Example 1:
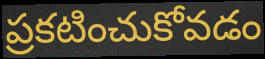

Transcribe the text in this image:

ప్రకటించుకోవడం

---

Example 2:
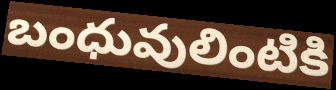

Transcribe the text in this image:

బంధువులింటికి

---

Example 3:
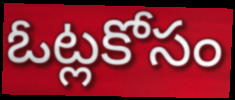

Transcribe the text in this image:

ఓట్లకోసం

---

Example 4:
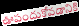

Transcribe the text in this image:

ఊపందుకోవడానికి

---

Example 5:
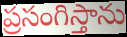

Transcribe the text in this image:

ప్రసంగిస్తాను